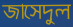
জাসেদুল